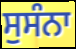
ਸੁਸੰਨਾ